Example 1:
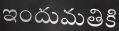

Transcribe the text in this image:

ఇందుమతికి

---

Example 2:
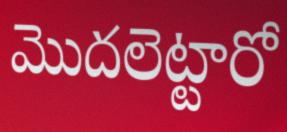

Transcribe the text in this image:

మొదలెట్టారో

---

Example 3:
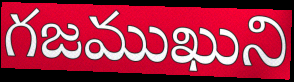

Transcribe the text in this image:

గజముఖుని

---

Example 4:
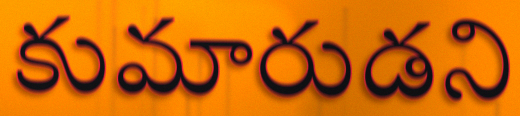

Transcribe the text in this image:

కుమారుడని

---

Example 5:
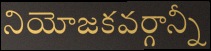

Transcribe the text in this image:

నియోజకవర్గాన్నీ